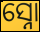
ସ୍ନୋ